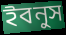
ইবনুস